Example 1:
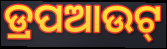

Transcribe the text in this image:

ଡ୍ରପଆଉଟ୍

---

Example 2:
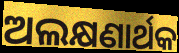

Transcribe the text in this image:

ଅଲକ୍ଷଣାର୍ଥକ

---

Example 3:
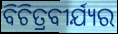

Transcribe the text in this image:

ବିଚିତ୍ରବୀର୍ଯ୍ୟର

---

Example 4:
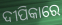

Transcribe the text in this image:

ଦୀପିକାରେ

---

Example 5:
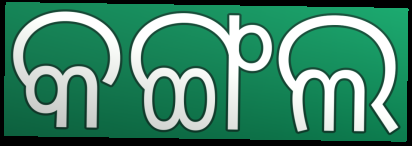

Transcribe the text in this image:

କଙ୍ଗଲ